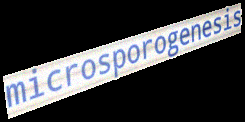
microsporogenesis